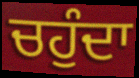
ਚਹੁੰਦਾ